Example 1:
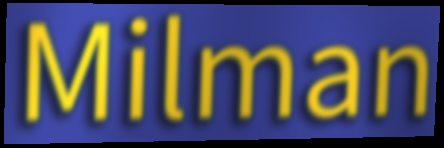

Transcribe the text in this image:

Milman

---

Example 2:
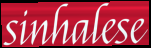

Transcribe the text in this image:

sinhalese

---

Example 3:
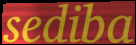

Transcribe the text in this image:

sediba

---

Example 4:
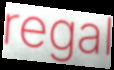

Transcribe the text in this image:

regal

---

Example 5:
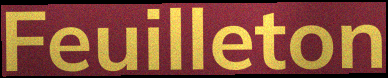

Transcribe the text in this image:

Feuilleton